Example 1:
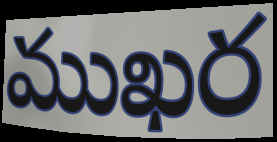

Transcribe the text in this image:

ముఖర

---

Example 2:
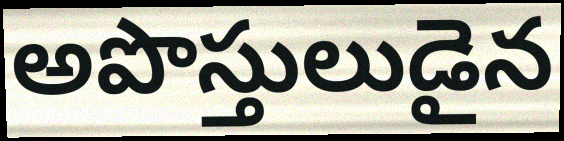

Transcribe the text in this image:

అపొస్తులుడైన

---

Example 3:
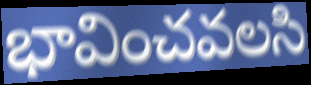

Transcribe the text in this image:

భావించవలసి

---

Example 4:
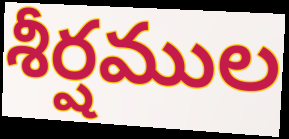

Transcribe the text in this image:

శీర్షముల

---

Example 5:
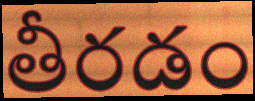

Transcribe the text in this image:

తీరడం